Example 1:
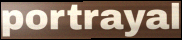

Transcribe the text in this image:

portrayal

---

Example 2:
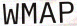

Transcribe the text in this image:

WMAP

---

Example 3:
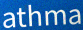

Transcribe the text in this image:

athma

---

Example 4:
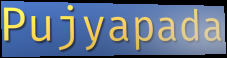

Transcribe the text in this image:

Pujyapada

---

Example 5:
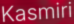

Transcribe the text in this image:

Kasmiri